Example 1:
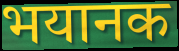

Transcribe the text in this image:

भयानक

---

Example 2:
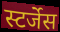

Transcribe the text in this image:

स्टर्जेस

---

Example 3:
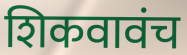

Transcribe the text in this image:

शिकवावंच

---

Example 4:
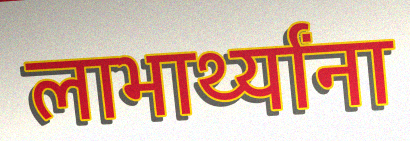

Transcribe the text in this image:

लाभार्थ्यांना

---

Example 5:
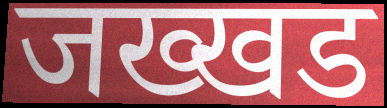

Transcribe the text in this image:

जख्खड